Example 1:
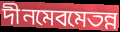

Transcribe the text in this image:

দীনমেবমেতন্ন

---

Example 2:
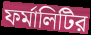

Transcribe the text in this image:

ফর্মালিটির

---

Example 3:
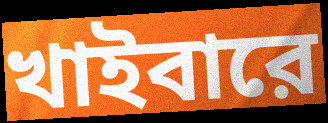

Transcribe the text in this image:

খাইবারে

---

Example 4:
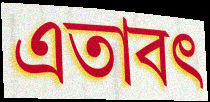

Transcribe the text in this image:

এতাবৎ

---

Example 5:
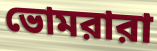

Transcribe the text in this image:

ভোমরারা